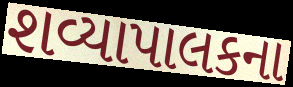
શવ્યાપાલકના